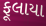
ફૂલાયા